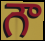
గౌ